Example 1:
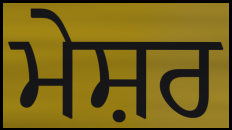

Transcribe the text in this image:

ਮੇਸ਼ਰ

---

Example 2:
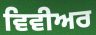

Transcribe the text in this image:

ਵਿਵੀਅਰ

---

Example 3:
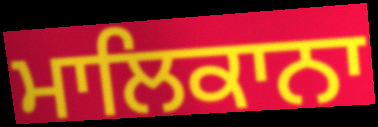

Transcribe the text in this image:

ਮਾਲਿਕਾਨਾ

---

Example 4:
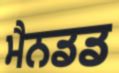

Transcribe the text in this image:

ਮੈਨਡਡ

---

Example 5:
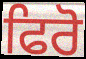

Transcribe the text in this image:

ਫਿਰੋ